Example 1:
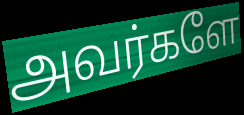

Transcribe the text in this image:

அவர்களே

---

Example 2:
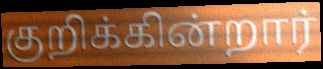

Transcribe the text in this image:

குறிக்கின்றார்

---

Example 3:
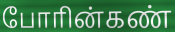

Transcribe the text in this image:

போரின்கண்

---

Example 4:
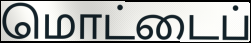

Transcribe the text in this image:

மொட்டைப்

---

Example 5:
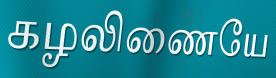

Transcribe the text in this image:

கழலிணையே